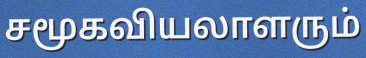
சமூகவியலாளரும்